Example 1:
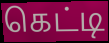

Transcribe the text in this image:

கெட்டி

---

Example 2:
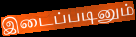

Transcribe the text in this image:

இடைப்படினும்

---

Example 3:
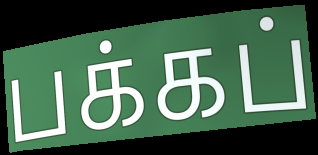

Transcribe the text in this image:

பக்கப்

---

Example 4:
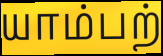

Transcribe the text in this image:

யாம்பற்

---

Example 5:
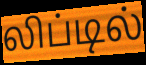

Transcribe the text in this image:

லிப்டில்